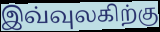
இவ்வுலகிற்கு